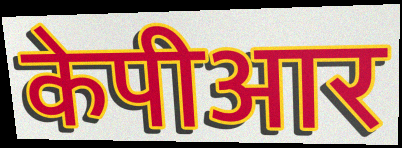
केपीआर